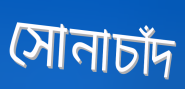
সোনাচাঁদ